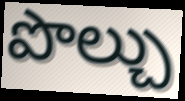
పొల్చు